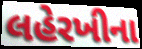
લહેરખીના